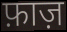
फ़ाज़